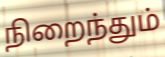
நிறைந்தும்